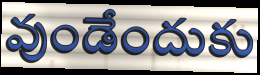
వుండేందుకు